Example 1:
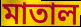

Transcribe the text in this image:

মাতাল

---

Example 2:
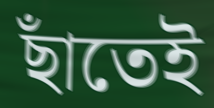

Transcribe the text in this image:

ছাঁতেই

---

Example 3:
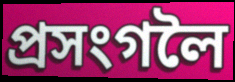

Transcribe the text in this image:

প্ৰসংগলৈ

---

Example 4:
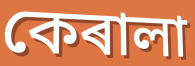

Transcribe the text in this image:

কেৰালা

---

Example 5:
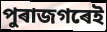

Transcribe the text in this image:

পুৰাজগৰেই